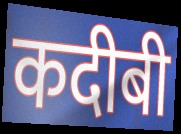
कदीबी